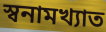
স্বনামখ্যাত